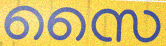
സൈ